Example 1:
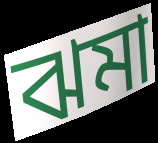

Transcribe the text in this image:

ঝমা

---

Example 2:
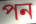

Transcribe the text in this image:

পন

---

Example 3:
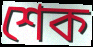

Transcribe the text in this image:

শেক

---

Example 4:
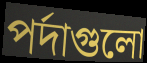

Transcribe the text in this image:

পর্দাগুলো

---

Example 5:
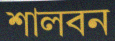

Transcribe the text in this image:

শালবন